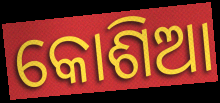
କୋଶିଆ